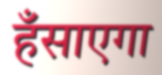
हँसाएगा